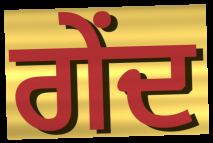
ਗੇਂਦ